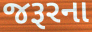
જરૂરના